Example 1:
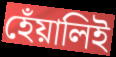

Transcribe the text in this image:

হেঁয়ালিই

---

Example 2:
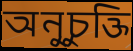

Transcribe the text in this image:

অনুচুক্তি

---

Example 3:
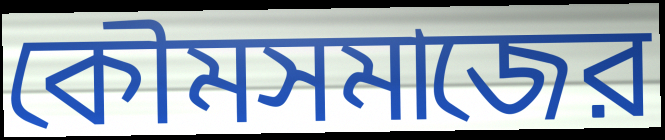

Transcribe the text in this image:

কৌমসমাজের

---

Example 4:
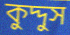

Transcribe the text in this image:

কুদ্দুস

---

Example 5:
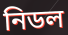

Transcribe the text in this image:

নিডল